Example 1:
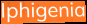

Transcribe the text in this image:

Iphigenia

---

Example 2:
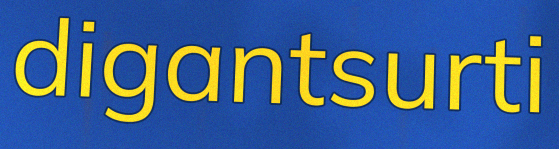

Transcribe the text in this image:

digantsurti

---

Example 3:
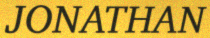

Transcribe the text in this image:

JONATHAN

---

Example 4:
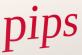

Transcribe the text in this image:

pips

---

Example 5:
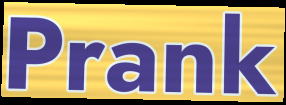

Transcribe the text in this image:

Prank